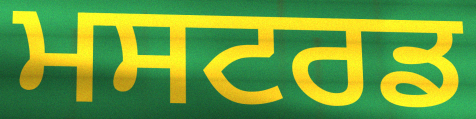
ਮਸਟਰਡ